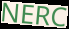
NERC